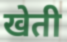
खेती